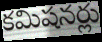
కమిషనర్లు